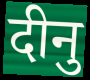
दीनु